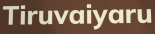
Tiruvaiyaru